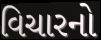
વિચારનો